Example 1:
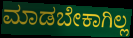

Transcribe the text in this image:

ಮಾಡಬೇಕಾಗಿಲ್ಲ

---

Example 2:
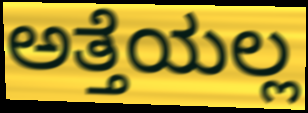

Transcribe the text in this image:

ಅತ್ತೆಯಲ್ಲ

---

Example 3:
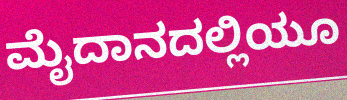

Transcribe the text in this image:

ಮೈದಾನದಲ್ಲಿಯೂ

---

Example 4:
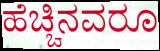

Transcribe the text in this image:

ಹೆಚ್ಚಿನವರೂ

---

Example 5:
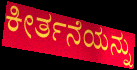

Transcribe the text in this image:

ಕೀರ್ತನೆಯನ್ನು